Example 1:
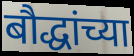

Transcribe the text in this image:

बौद्धांच्या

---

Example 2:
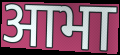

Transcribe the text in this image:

आभा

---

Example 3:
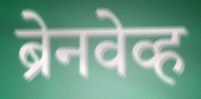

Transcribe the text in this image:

ब्रेनवेव्ह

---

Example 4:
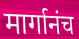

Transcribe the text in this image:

मार्गानंच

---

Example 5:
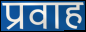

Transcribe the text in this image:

प्रवाह